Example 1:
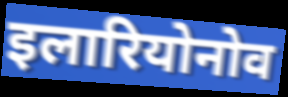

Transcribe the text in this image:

इलारियोनोव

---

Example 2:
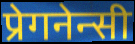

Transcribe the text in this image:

प्रेगनेन्सी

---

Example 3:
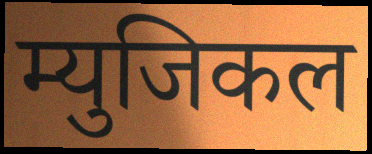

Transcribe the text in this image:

म्युजिकल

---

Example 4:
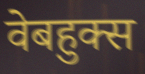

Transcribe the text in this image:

वेबहुक्स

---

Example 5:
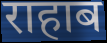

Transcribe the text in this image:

राहाब